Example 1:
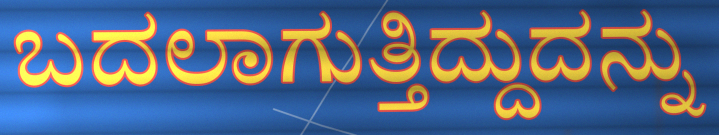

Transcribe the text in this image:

ಬದಲಾಗುತ್ತಿದ್ದುದನ್ನು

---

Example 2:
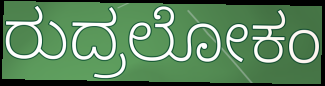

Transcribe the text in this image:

ರುದ್ರಲೋಕಂ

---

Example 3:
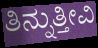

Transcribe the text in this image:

ತಿನ್ನುತ್ತೀವಿ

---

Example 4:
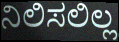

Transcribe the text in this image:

ನಿಲಿಸಲಿಲ್ಲ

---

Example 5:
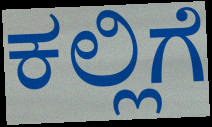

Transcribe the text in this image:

ಕಲ್ಲಿಗೆ